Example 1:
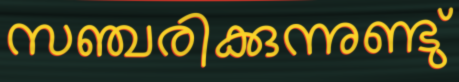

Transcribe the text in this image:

സഞ്ചരിക്കുന്നുണ്ടു്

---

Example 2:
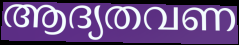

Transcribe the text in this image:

ആദ്യതവണ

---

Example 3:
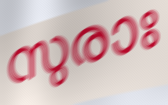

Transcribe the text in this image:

സുരാഃ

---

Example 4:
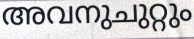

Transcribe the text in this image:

അവനുചുറ്റും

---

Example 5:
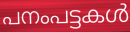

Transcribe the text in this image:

പനംപട്ടകൾ